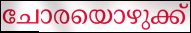
ചോരയൊഴുക്ക്